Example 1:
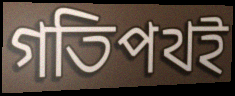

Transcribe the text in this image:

গতিপথই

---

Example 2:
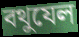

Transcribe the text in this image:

বথুযেল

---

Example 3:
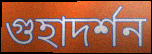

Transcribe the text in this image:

গুহাদর্শন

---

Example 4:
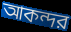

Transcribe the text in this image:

আকন্দর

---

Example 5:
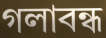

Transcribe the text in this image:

গলাবন্ধ